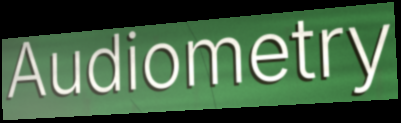
Audiometry